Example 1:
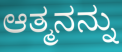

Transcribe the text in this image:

ಆತ್ಮನನ್ನು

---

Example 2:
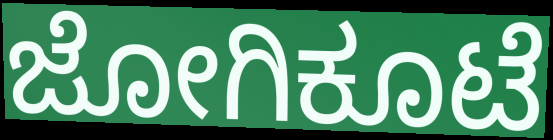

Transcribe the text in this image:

ಜೋಗಿಕೂಟೆ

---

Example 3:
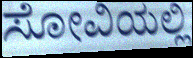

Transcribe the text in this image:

ಸೋವಿಯಲ್ಲಿ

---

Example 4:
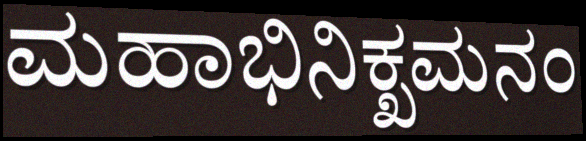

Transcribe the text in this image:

ಮಹಾಭಿನಿಕ್ಖಮನಂ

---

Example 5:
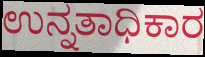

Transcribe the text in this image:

ಉನ್ನತಾಧಿಕಾರ